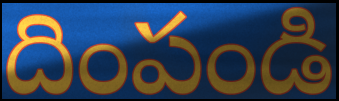
దింపండి